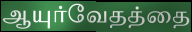
ஆயுர்வேதத்தை